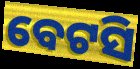
ବେଟସି